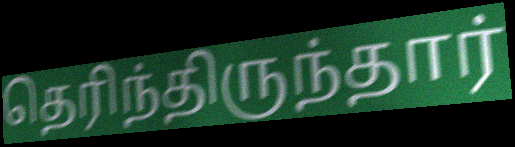
தெரிந்திருந்தார்